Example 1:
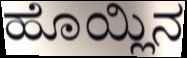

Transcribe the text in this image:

ಹೊಯ್ಲಿನ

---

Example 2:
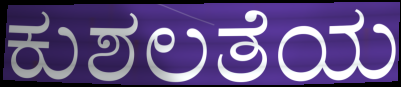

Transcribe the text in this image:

ಕುಶಲತೆಯ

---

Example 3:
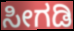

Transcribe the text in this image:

ಸೀಗಡಿ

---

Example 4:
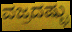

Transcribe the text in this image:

ವಜ್ರದಷ್ಟು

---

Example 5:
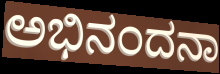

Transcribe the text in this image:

ಅಭಿನಂದನಾ